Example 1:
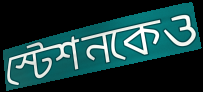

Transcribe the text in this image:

স্টেশনকেও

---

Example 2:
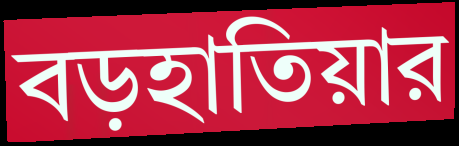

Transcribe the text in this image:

বড়হাতিয়ার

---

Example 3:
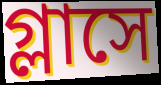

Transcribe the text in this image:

গ্লাসে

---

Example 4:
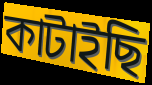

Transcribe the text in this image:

কাটাইছি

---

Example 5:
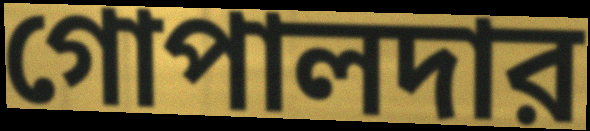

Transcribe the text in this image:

গোপালদার